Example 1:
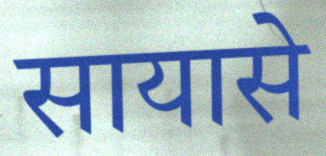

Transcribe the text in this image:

सायासे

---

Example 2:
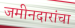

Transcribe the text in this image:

जमीनदारांचा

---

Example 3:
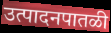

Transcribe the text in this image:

उत्पादनपातळी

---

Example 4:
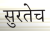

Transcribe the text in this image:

सुरतेच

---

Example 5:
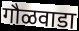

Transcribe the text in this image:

गौळवाडा